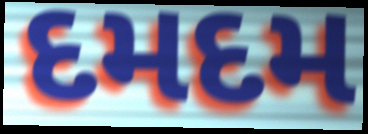
દમદમ